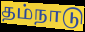
தம்நாடு